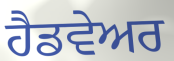
ਹੈਡਵੇਅਰ